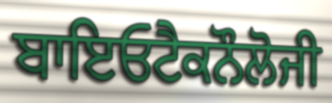
ਬਾਇਓਟੈਕਨੌਲੋਜੀ